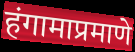
हंगामाप्रमाणे